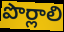
పొర్లాలి